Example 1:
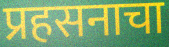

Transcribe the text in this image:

प्रहसनाचा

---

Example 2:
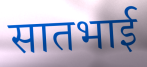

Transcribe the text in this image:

सातभाई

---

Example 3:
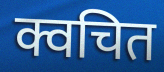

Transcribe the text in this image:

क्वचित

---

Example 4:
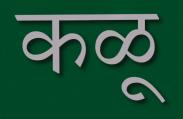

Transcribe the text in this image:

कळू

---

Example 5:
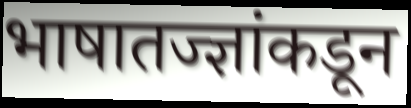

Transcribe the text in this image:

भाषातज्ज्ञांकडून